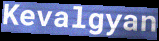
Kevalgyan